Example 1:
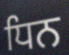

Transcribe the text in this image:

ਧਿਨ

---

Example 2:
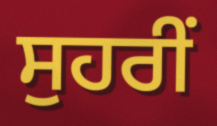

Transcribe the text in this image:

ਸੁਹਰੀਂ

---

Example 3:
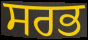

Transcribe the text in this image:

ਸਰਭ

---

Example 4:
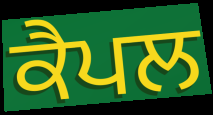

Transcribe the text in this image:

ਕੈਪਲ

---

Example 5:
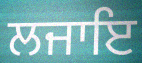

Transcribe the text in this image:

ਲਜਾਇ